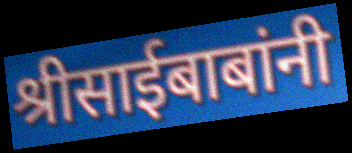
श्रीसाईबाबांनी